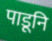
पाडूनि